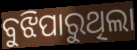
ବୁଝିପାରୁଥିଲା